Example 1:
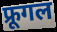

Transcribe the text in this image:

फ्रूगल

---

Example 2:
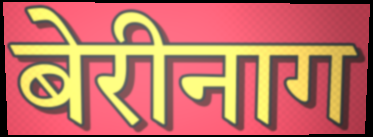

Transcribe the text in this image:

बेरीनाग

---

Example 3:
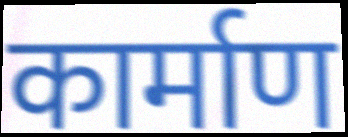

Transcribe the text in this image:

कार्माण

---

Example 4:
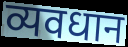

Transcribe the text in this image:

व्यवधान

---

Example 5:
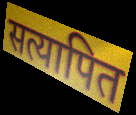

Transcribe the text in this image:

सत्यापित